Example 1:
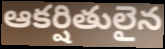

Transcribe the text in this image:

ఆకర్షితులైన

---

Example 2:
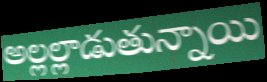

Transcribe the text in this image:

అల్లల్లాడుతున్నాయి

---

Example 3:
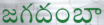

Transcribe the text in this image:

జగదంబా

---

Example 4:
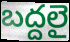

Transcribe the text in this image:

బద్దలై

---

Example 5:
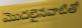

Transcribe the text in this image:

మొదలైనవాటితో